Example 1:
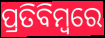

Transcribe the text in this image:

ପ୍ରତିବିମ୍ବରେ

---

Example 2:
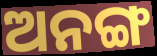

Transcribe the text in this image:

ଅନଙ୍ଗ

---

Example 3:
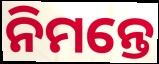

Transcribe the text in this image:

ନିମନ୍ତେ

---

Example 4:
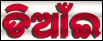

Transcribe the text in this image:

ଡିଆଁଇ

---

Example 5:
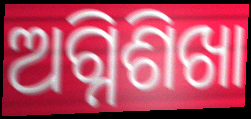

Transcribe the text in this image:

ଅଗ୍ନିଶିଖା